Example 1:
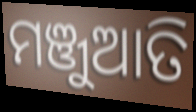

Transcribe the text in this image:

ମଞ୍ଜୁଆତି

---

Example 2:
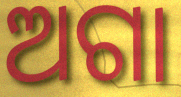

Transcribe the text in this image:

ଅଗା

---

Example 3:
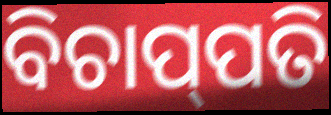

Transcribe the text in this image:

ବିଚାପ୍‌ପତି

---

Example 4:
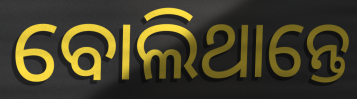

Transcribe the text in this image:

ବୋଲିଥାନ୍ତେ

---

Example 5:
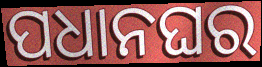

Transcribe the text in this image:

ପଧାନଘର